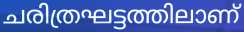
ചരിത്രഘട്ടത്തിലാണ്